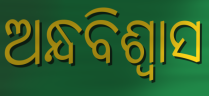
ଅନ୍ଧବିଶ୍ଵାସ